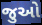
જુઓ